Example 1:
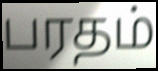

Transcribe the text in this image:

பரதம்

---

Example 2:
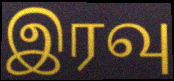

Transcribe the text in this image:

இரவு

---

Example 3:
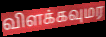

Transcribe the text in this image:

விளக்கவுமர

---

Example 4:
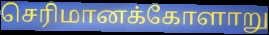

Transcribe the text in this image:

செரிமானக்கோளாறு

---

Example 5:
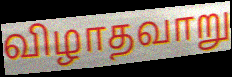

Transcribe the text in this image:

விழாதவாறு